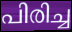
പിരിച്ച